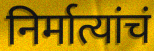
निर्मात्यांचं